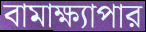
বামাক্ষ্যাপার